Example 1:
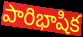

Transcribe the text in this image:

పారిభాషిక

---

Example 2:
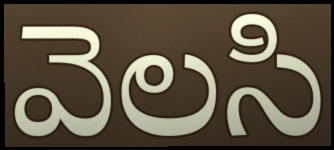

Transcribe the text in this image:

వెలసి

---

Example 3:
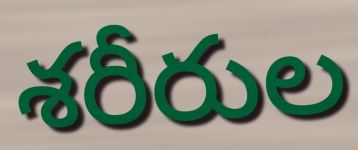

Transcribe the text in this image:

శరీరుల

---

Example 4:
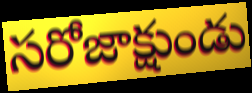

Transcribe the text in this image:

సరోజాక్షుండు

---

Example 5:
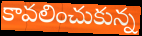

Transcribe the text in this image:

కావలించుకున్న